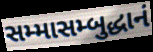
સમ્માસમ્બુદ્ધાનં